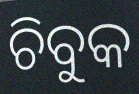
ଚିବୁକ